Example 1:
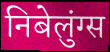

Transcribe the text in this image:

निबेलुंग्स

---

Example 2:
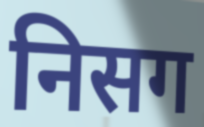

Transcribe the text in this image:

निसग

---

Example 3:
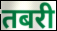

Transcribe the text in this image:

तबरी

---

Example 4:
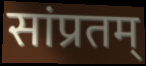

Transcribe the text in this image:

सांप्रतम्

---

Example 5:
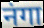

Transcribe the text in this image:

नंगा